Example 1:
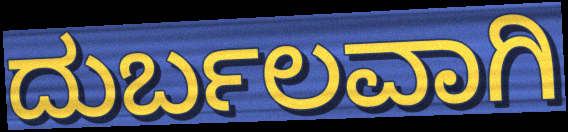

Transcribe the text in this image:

ದುರ್ಬಲವಾಗಿ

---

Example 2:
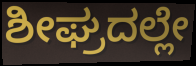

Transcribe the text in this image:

ಶೀಘ್ರದಲ್ಲೇ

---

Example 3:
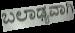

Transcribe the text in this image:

ಬಲಾಢ್ಯವಾಗಿ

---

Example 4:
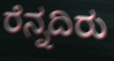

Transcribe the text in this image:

ರೆನ್ನದಿರು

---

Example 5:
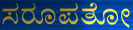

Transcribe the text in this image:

ಸರೂಪತೋ